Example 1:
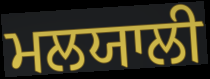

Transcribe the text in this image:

ਮਲਯਾਲੀ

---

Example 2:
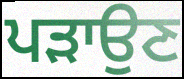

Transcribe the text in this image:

ਪੜਾਉਣ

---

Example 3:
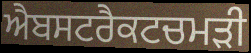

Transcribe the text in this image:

ਐਬਸਟਰੈਕਟਚਮੜੀ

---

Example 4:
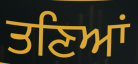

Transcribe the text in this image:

ਤਣਿਆਂ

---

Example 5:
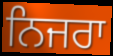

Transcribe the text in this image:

ਨਿਜਰਾ